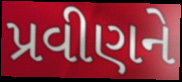
પ્રવીણને